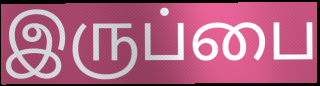
இருப்பை